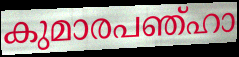
കുമാരപഞ്ഹാ